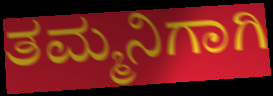
ತಮ್ಮನಿಗಾಗಿ